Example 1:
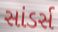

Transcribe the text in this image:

સાંડર્સ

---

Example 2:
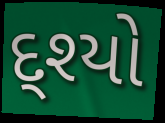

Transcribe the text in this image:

દ્શ્યો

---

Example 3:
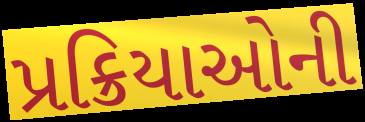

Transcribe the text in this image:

પ્રક્રિયાઓની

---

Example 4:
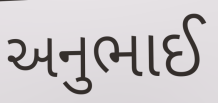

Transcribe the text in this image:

અનુભાઈ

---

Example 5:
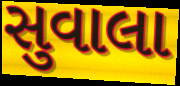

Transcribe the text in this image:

સુવાલા